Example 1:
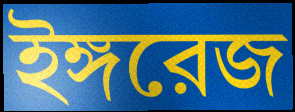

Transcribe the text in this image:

ইঙ্গরেজ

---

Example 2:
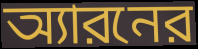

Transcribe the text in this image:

অ্যারনের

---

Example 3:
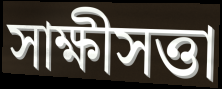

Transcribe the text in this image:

সাক্ষীসত্তা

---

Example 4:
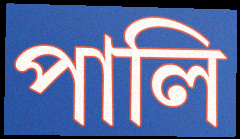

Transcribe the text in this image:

পালি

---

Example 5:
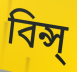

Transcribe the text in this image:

বিন্স্